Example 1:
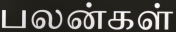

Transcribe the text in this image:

பலன்கள்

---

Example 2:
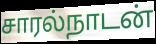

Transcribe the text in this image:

சாரல்நாடன்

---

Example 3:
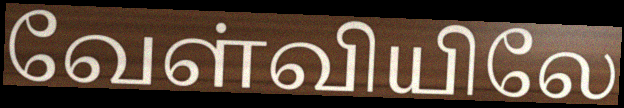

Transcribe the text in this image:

வேள்வியிலே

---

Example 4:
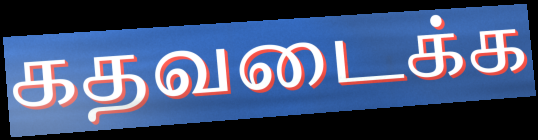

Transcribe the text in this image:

கதவடைக்க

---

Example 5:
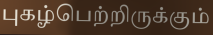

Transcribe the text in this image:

புகழ்பெற்றிருக்கும்